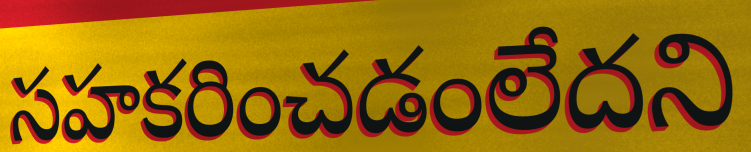
సహకరించడంలేదని